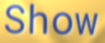
Show